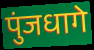
पुंजधागे